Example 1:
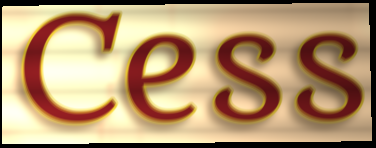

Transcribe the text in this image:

Cess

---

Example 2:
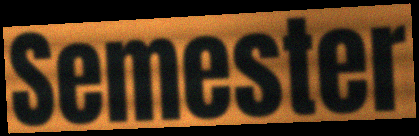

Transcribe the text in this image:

Semester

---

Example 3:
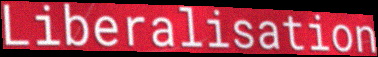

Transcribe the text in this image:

Liberalisation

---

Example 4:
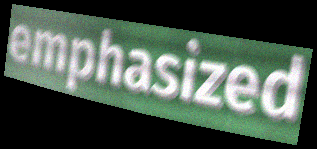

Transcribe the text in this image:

emphasized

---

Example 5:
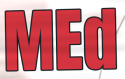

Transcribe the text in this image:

MEd